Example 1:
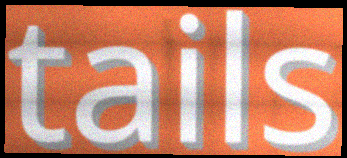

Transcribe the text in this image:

tails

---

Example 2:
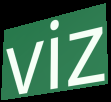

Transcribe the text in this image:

viz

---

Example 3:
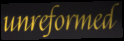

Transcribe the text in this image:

unreformed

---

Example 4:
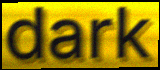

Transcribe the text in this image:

dark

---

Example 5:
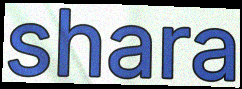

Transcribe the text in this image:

shara